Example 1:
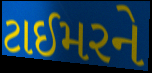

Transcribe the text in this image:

ટાઈમરને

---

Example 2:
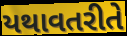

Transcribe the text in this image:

યથાવતરીતે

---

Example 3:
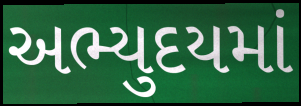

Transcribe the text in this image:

અભ્યુદયમાં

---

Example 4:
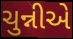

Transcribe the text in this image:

ચુન્નીએ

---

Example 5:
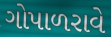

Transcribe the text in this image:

ગોપાળરાવે